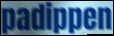
padippen